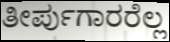
ತೀರ್ಪುಗಾರರೆಲ್ಲ